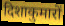
दिशाकुमारों